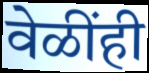
वेळींही